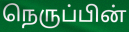
நெருப்பின்